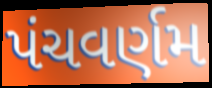
પંચવર્ણમ